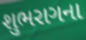
શુભરાગના